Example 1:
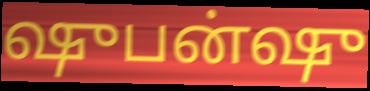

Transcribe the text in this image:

ஷுபன்ஷு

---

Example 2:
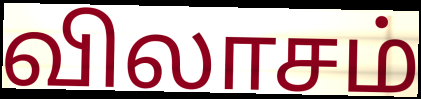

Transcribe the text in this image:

விலாசம்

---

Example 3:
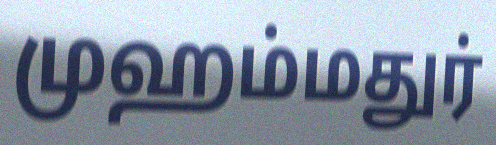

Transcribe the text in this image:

முஹம்மதுர்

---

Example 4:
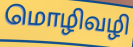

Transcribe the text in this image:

மொழிவழி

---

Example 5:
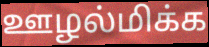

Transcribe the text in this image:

ஊழல்மிக்க